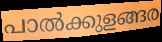
പാൽക്കുളങ്ങര